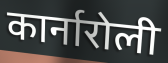
कार्नारोली